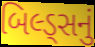
બિલ્ડ્સનું